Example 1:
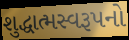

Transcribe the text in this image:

શુદ્ધાત્મસ્વરૂપનો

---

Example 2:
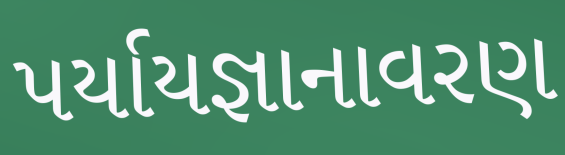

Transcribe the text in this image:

પર્યાયજ્ઞાનાવરણ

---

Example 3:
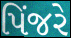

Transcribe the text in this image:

પિંજરે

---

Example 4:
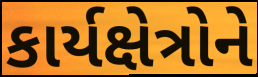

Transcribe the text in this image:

કાર્યક્ષેત્રોને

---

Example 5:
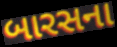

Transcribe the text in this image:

બારસના